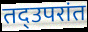
तद्उपरांत